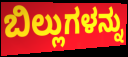
ಬಿಲ್ಲುಗಳನ್ನು